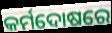
କର୍ମଦୋଷରେ